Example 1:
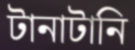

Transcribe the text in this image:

টানাটানি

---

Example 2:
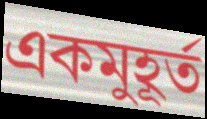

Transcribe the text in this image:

একমুহূর্ত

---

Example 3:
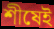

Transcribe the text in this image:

শীষেই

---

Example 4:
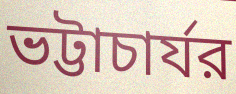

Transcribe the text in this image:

ভট্টাচার্যর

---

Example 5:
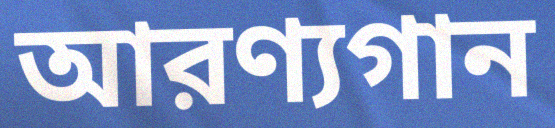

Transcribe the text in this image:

আরণ্যগান